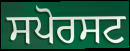
ਸਪੋਰਸਟ